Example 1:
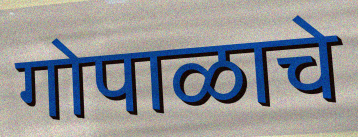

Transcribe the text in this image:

गोपाळाचे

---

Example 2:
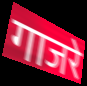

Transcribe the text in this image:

गाजरे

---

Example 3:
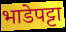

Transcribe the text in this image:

भाडेपट्टा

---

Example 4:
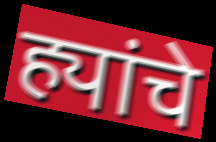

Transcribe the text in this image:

ह्यांचे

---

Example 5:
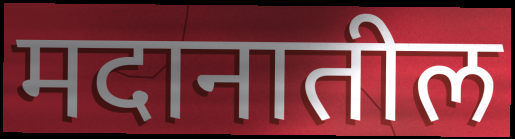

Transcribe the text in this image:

मदानातील